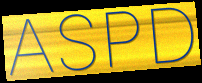
ASPD